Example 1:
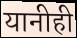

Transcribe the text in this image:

यानीही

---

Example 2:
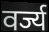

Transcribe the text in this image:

वर्ज्य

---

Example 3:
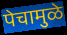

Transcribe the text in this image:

पेचामुळे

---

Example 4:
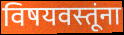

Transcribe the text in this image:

विषयवस्तूंना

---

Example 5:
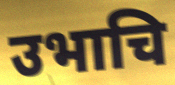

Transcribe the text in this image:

उभाचि